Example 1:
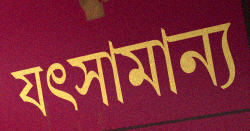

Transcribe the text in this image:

যৎসামান্য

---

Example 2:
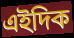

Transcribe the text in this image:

এইদিক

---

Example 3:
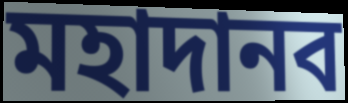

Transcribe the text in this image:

মহাদানব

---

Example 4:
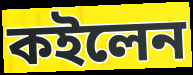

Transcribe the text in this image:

কইলেন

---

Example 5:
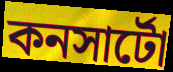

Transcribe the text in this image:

কনসার্টো